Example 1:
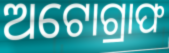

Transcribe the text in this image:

ଅଟୋଗ୍ରାଫ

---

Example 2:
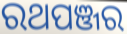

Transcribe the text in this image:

ରଥପଞ୍ଜର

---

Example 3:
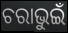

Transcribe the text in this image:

ଚରାଭୁଇଁ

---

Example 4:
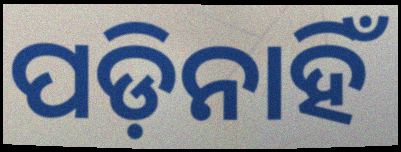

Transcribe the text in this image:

ପଡ଼ିନାହିଁ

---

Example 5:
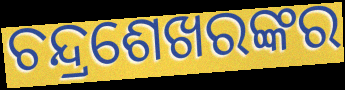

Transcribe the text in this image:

ଚନ୍ଦ୍ରଶେଖରଙ୍କର